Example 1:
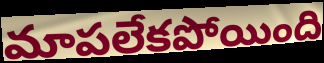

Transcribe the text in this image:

మాపలేకపోయింది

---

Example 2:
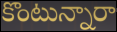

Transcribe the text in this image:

కొంటున్నారా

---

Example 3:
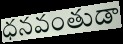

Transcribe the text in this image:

ధనవంతుడా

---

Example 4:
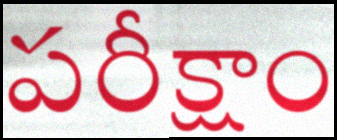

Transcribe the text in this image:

పరీక్షాం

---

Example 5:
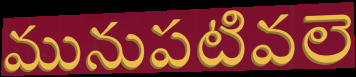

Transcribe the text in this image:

మునుపటివలె